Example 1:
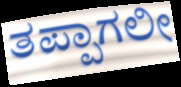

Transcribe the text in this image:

ತಪ್ಪಾಗಲೀ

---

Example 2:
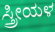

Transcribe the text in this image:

ಸ್ತ್ರೀಯಳ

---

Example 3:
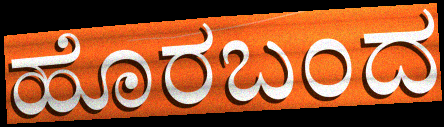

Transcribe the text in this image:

ಹೊರಬಂದ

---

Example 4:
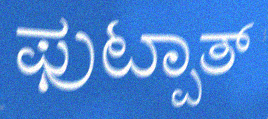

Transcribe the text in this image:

ಫುಟ್ಪಾತ್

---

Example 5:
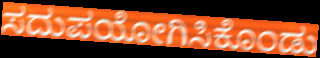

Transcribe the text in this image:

ಸದುಪಯೋಗಿಸಿಕೊಂಡು